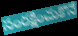
సంరక్షించుకొనే